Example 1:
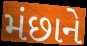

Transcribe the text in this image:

મંછાને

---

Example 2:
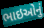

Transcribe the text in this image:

ભાઇઓનું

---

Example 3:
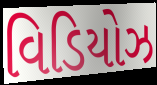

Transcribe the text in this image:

વિડિયોઝ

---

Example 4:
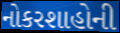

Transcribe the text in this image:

નોકરશાહોની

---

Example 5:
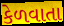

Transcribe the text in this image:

કેળવાતા